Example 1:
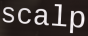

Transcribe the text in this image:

scalp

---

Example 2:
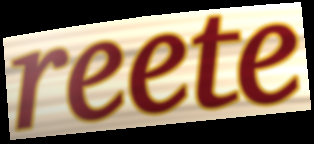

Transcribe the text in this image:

reete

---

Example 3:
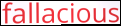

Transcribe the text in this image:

fallacious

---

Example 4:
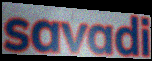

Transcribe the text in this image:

savadi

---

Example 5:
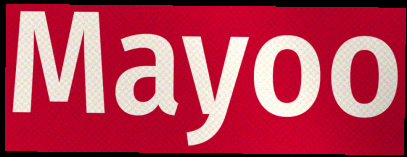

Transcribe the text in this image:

Mayoo